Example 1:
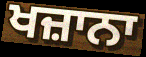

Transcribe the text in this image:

ਖਜ਼ਾਨਾ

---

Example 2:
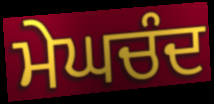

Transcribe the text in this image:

ਮੇਘਚੰਦ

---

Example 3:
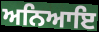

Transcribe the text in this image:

ਅਨਿਆਇ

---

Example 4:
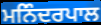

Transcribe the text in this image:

ਮਨਿੰਦਰਪਾਲ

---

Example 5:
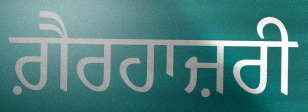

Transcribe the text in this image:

ਗ਼ੈਰਹਾਜ਼ਰੀ